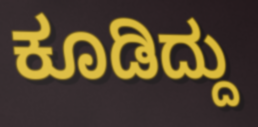
ಕೂಡಿದ್ದು